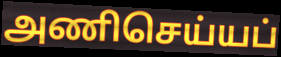
அணிசெய்யப்